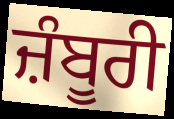
ਜ਼ੰਬੂਰੀ